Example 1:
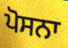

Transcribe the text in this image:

ਪੋਸਨਾ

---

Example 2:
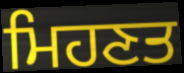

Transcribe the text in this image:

ਮਿਹਣਤ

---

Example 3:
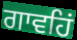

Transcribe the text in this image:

ਗਾਵਹਿਂ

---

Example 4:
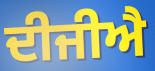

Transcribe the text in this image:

ਦੀਜੀਐ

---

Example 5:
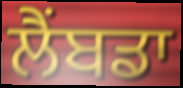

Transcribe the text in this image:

ਲੈਂਬਡਾ